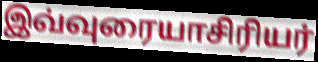
இவ்வுரையாசிரியர்